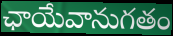
ఛాయేవానుగతం